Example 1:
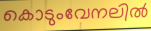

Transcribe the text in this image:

കൊടുംവേനലിൽ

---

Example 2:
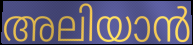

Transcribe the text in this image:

അലിയാൻ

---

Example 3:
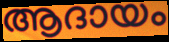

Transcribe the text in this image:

ആദായം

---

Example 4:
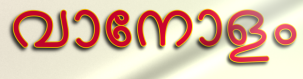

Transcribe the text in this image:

വാനോളം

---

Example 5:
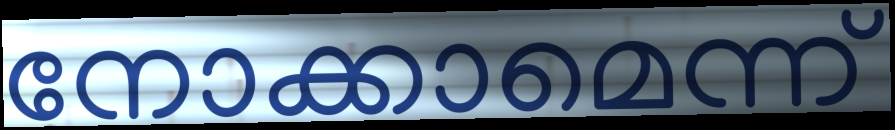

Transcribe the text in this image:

നോക്കാമെന്ന്